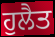
ਹੁਲੈਤ